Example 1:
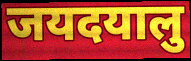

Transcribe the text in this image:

जयदयालु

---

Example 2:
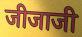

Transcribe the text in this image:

जीजाजी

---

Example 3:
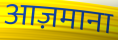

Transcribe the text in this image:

आज़माना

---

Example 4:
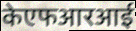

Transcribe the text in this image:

केएफआरआई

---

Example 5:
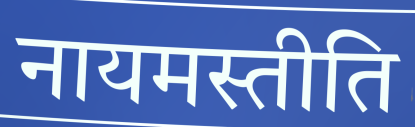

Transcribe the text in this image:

नायमस्तीति